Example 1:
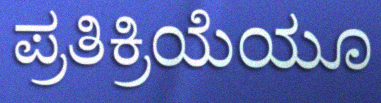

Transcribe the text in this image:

ಪ್ರತಿಕ್ರಿಯೆಯೂ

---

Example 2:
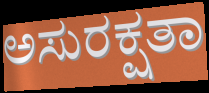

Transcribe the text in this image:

ಅಸುರಕ್ಷತಾ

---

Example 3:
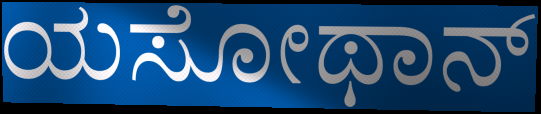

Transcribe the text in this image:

ಯಸೋಥಾನ್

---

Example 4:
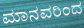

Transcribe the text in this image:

ಮಾನವರಿಂದ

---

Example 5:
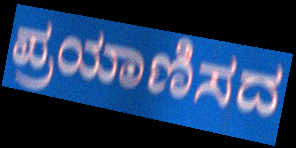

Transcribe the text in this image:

ಪ್ರಯಾಣಿಸದ